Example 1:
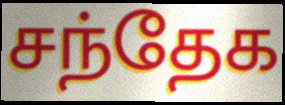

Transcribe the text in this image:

சந்தேக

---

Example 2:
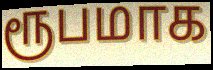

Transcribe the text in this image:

ரூபமாக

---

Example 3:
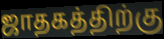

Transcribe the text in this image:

ஜாதகத்திற்கு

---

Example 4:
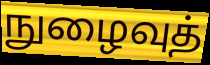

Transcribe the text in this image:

நுழைவுத்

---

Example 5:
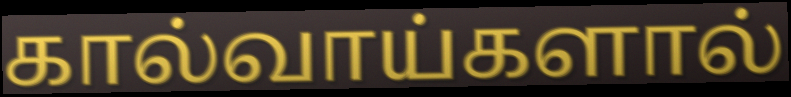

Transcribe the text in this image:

கால்வாய்களால்